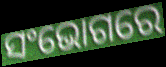
ସଂଭୋଗରେ